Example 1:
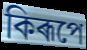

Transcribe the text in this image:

কিৰূপে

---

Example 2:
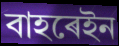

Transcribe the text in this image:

বাহৰেইন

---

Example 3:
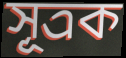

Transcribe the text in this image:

সূত্ৰক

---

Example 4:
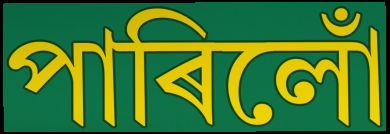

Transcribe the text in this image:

পাৰিলোঁ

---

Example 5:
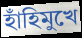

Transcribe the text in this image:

হাঁহিমুখে